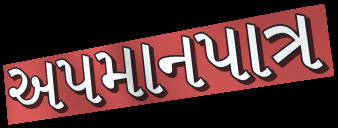
અપમાનપાત્ર